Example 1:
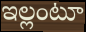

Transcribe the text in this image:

ఇల్లంటూ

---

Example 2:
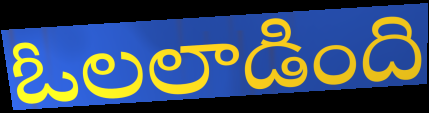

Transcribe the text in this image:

ఓలలాడింది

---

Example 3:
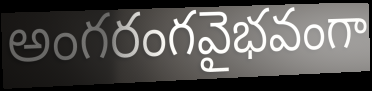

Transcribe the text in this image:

అంగరంగవైభవంగా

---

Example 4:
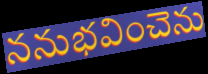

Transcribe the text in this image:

ననుభవించెను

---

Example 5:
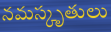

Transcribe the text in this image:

నమస్కృతులు